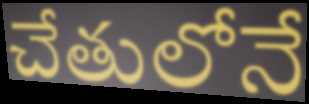
చేతులోనే